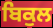
ਬਿਕੁਲ